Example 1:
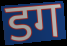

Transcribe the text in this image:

डग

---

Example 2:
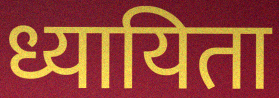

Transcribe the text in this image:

ध्यायिता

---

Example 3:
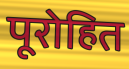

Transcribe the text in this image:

पूरोहित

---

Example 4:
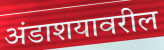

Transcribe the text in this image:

अंडाशयावरील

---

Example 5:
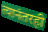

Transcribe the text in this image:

त्यानंतरही